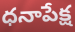
ధనాపేక్ష